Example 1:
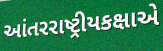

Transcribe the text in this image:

આંતરરાષ્ટ્રીયકક્ષાએ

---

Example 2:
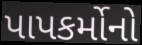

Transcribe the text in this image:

પાપકર્મોનો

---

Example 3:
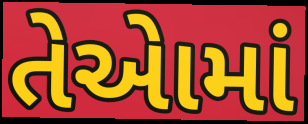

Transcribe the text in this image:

તેએામાં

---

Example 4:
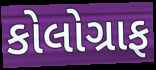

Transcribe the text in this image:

કોલોગ્રાફ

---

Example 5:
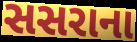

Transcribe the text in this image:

સસરાના